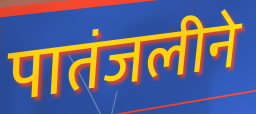
पातंजलीने